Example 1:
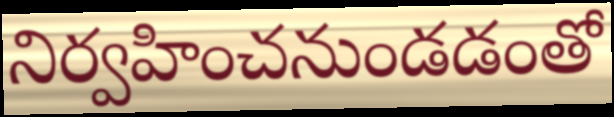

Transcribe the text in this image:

నిర్వహించనుండడంతో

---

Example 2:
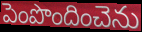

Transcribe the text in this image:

పెంపొందించెను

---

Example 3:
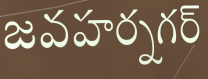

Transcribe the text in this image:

జవహర్నగర్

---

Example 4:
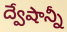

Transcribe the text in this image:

ద్వేషాన్నీ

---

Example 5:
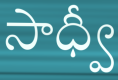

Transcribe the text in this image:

సాధ్వీ